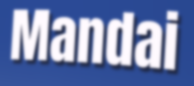
Mandai